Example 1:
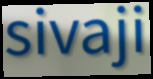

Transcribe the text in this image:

sivaji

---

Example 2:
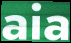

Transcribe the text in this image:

aia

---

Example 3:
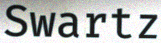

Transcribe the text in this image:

Swartz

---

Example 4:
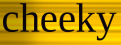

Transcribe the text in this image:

cheeky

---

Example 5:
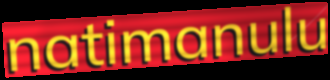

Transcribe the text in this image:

natimanulu